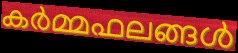
കർമ്മഫലങ്ങൾ